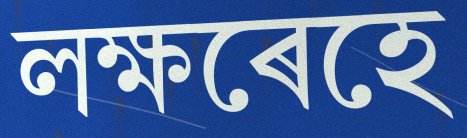
লক্ষৰেহে